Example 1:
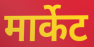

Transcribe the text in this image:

मार्केट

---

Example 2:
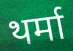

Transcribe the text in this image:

थर्मा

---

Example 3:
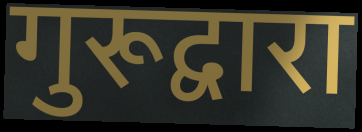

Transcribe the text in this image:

गुरूद्वारा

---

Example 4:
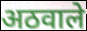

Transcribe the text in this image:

अठवाले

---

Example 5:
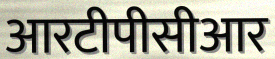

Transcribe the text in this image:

आरटीपीसीआर